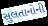
સુલતાનોની